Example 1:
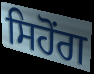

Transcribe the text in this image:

ਸਿਹੋਂਗ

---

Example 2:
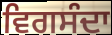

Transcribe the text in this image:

ਵਿਗਸੰਦਾ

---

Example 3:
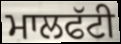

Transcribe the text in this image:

ਮਾਲਫੱਟੀ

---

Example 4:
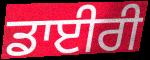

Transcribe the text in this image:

ਡਾਈਰੀ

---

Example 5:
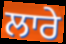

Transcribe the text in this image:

ਲਾਰੇ